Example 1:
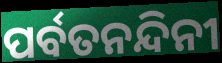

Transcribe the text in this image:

ପର୍ବତନନ୍ଦିନୀ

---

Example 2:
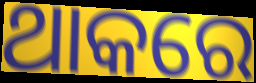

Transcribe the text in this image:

ଥାକରେ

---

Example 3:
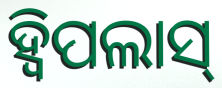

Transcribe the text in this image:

ହ୍ୱିପଲାସ୍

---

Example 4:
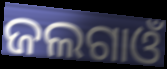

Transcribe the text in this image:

ଜଲଗାଓଁ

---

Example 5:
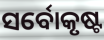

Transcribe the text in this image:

ସର୍ବୋକୃଷ୍ଟ